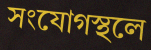
সংযোগস্থলে